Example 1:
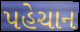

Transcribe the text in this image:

પહેચાન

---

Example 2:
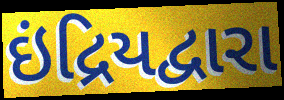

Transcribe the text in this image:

ઇંદ્રિયદ્વારા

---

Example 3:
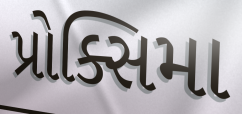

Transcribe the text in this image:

પ્રોક્સિમા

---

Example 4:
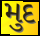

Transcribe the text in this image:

મુદ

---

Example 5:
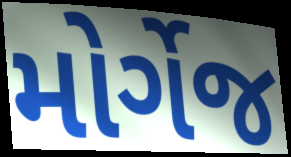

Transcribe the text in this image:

મોર્ગેજ